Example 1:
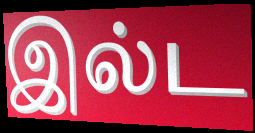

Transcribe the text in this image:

இல்ட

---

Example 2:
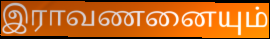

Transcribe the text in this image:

இராவணனையும்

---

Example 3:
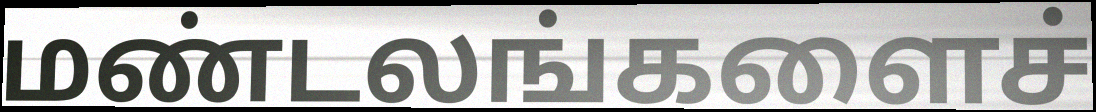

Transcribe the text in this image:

மண்டலங்களைச்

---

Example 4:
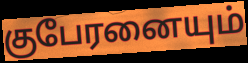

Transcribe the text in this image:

குபேரனையும்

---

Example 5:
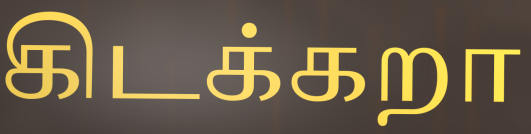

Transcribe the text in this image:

கிடக்கறா